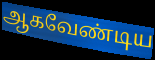
ஆகவேண்டிய